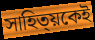
সাহিত্য়কেই